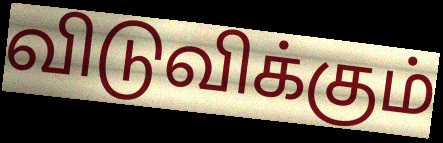
விடுவிக்கும்